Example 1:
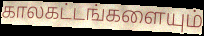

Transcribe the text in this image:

காலகட்டங்களையும்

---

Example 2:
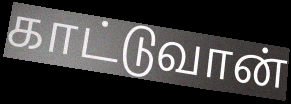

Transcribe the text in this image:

காட்டுவான்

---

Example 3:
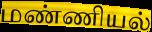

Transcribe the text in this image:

மண்ணியல்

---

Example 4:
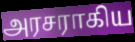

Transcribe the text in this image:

அரசராகிய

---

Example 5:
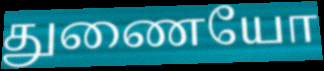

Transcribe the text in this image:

துணையோ